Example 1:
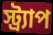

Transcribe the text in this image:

স্ট্র্যাপ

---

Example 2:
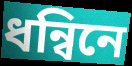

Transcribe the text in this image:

ধন্বিনে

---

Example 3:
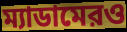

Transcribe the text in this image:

ম্যাডামেরও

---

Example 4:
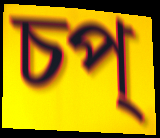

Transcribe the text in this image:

চপ্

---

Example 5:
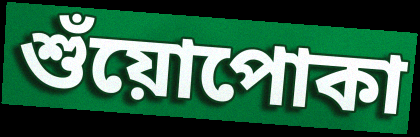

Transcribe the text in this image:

শুঁয়োপোকা